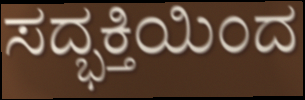
ಸದ್ಭಕ್ತಿಯಿಂದ